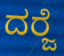
ದರ‍್ಜೆ